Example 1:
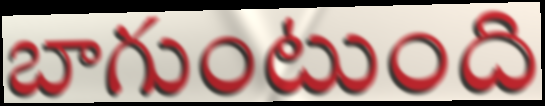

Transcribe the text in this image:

బాగుంటుంది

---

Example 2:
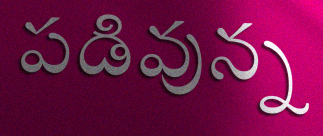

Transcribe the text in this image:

పడివున్న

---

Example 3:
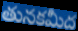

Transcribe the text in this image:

తునకమీద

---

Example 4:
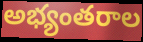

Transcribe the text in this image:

అభ్యంతరాల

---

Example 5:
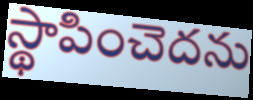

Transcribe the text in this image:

స్థాపించెదను